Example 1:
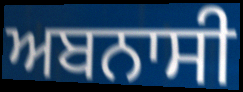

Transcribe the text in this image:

ਅਬਨਾਸੀ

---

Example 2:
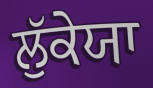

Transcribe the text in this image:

ਲੁੱਕੇਯਾ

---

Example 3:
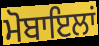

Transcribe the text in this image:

ਮੋਬਾਇਲਾਂ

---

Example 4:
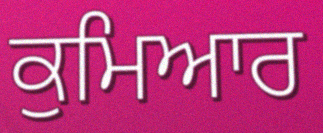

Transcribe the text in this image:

ਕੁਮਿਆਰ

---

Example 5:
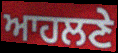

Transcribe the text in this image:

ਆਹਲਣੇ